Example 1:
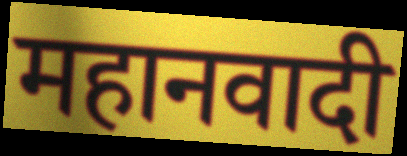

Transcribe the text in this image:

महानवादी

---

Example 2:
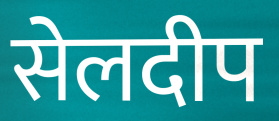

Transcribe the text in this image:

सेलदीप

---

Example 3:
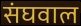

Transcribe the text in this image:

संघवाल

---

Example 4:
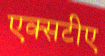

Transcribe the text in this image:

एक्सटीए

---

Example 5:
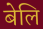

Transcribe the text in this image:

बेलि